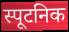
स्पूटनिक